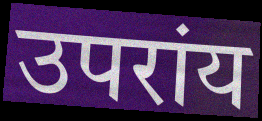
उपरांय